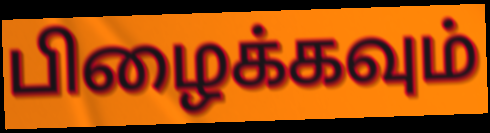
பிழைக்கவும்